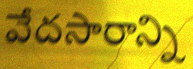
వేదసారాన్ని